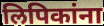
लिपिकांना